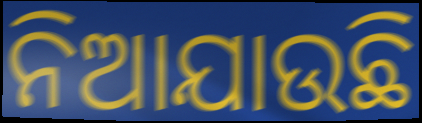
ନିଆଯାଉଛି